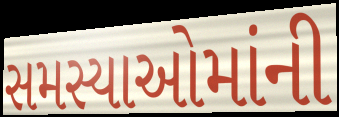
સમસ્યાઓમાંની